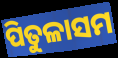
ପିତୁଳାସମ